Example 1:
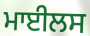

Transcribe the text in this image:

ਮਾਈਲਸ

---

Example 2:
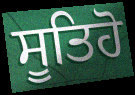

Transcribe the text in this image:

ਸੂਤਿਹੋ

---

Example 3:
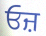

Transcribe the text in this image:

ਓਜ਼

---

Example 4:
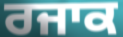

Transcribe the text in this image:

ਰਜਾਕ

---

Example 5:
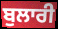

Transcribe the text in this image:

ਬੁਲਾਰੀ